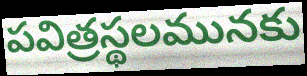
పవిత్రస్థలమునకు